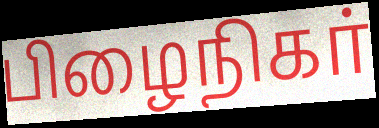
பிழைநிகர்